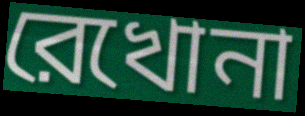
রেখোনা